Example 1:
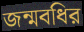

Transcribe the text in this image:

জন্মবধির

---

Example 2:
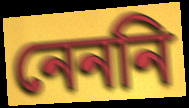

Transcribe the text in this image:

নেননি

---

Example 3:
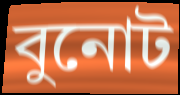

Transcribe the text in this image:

বুনোট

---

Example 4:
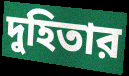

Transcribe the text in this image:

দুহিতার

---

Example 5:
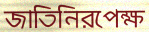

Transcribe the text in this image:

জাতিনিরপেক্ষ